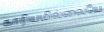
காரியமில்லையே